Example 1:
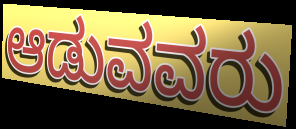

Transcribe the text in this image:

ಆಡುವವರು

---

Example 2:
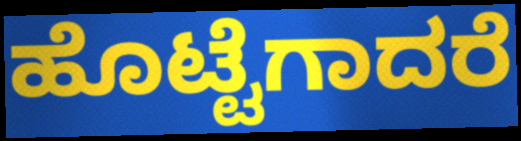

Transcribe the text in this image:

ಹೊಟ್ಟೆಗಾದರೆ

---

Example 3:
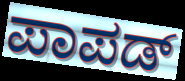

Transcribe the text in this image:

ಪಾಪಡ್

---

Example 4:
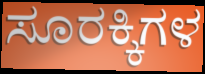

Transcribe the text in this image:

ಸೂರಕ್ಕಿಗಳ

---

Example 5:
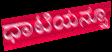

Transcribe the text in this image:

ಧಾಟಿಯನ್ನೂ